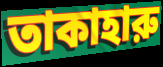
তাকাহারু